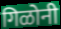
गिळोनी